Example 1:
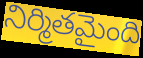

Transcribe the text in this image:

నిర్మితమైంది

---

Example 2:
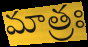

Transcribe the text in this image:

మాత్రః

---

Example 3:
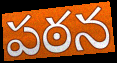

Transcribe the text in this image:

పఠన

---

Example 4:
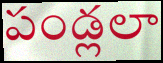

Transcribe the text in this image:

పండ్లలా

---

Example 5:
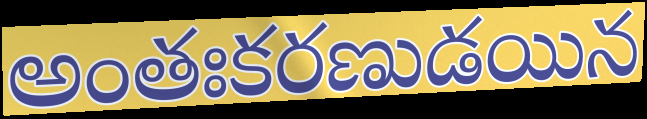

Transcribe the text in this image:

అంతఃకరణుడయిన